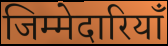
जिम्मेदारियॉं